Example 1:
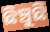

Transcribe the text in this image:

ଛିଞ୍ଚୁଛି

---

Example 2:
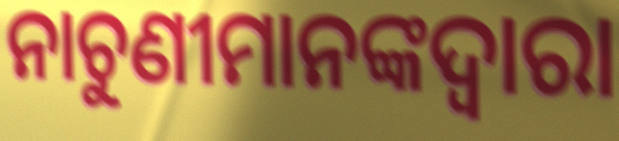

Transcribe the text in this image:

ନାଚୁଣୀମାନଙ୍କଦ୍ୱାରା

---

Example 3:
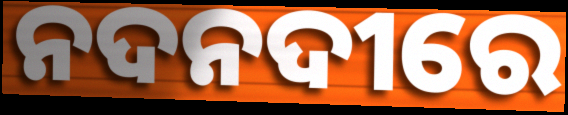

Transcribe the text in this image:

ନଦନଦୀରେ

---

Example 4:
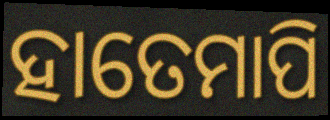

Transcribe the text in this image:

ହାତେମାପି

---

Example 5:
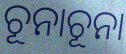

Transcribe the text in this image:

ଚୂନାଚୂନା